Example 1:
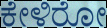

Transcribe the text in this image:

ಕೇಳಿರೋ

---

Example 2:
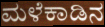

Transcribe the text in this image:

ಮಳೆಕಾಡಿನ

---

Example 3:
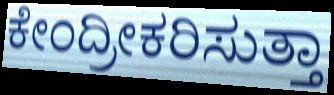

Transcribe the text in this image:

ಕೇಂದ್ರೀಕರಿಸುತ್ತಾ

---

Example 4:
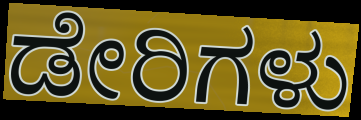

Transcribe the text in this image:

ಡೇರಿಗಳು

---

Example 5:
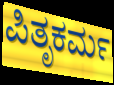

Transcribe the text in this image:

ಪಿತೃಕರ್ಮ